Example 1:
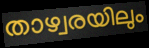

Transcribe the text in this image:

താഴ്വരയിലും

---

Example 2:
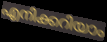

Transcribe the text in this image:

എനിക്കറിയാം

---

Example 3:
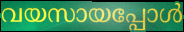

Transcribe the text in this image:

വയസായപ്പോൾ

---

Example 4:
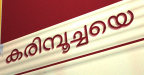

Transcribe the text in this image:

കരിമ്പൂച്ചയെ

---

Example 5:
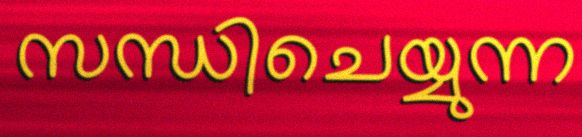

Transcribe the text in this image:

സന്ധിചെയ്യുന്ന